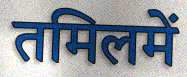
तमिलमें